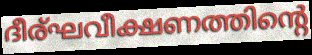
ദീര്ഘവീക്ഷണത്തിന്റെ